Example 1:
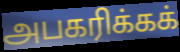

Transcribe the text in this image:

அபகரிக்கக்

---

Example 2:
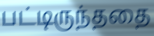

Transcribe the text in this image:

பட்டிருந்ததை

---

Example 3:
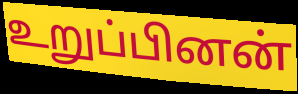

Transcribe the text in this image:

உறுப்பினன்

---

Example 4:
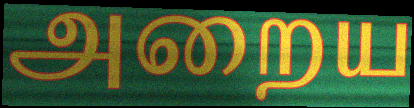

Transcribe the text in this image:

அறைய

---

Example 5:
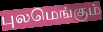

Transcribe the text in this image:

புலமெங்கும்